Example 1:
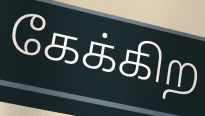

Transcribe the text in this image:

கேக்கிற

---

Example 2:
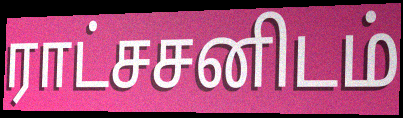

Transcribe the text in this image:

ராட்சசனிடம்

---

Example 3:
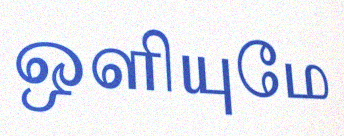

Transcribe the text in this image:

ஒளியுமே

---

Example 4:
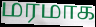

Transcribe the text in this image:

மரமாக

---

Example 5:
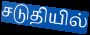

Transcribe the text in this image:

சடுதியில்